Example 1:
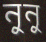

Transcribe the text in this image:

নুনু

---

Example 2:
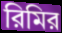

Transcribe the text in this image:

রিমির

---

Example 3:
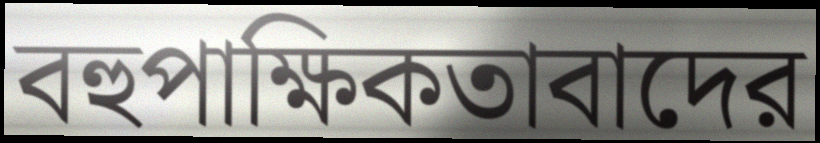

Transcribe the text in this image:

বহুপাক্ষিকতাবাদের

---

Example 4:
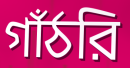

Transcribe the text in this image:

গাঁঠরি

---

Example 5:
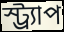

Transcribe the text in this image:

স্ট্র্যাপ